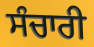
ਸੰਚਾਰੀ